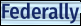
Federally